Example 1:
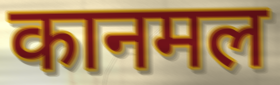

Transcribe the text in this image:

कानमल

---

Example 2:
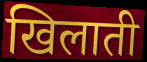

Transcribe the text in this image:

खिलाती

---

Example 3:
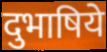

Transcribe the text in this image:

दुभाषिये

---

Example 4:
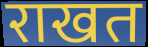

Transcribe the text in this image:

राखत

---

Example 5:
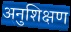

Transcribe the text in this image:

अनुशिक्षण